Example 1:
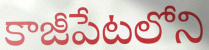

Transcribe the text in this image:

కాజీపేటలోని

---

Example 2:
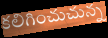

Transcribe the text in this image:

కలిగించుచున్న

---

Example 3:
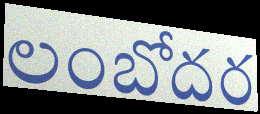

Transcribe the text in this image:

లంబోదర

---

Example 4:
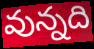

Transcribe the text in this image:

వున్నది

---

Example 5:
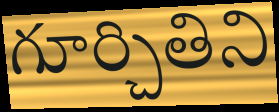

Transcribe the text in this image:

గూర్చితిని